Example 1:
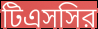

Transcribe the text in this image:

টিএসসির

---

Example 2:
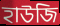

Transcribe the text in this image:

হাউজি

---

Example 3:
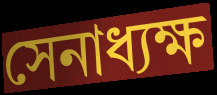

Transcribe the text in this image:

সেনাধ্যক্ষ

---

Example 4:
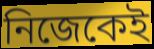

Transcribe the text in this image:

নিজেকেই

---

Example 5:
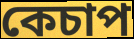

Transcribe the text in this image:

কেচাপ